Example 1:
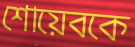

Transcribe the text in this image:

শোয়েবকে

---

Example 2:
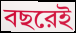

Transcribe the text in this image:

বছরেই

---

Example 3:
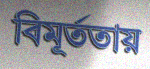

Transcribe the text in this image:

বিমূর্ততায়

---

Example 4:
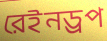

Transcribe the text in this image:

রেইনড্রপ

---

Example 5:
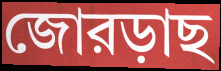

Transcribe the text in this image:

জোরড়াছ